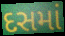
દસમાં